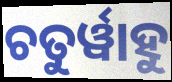
ଚତୁର୍ୱାହୁ